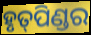
ହୃତ୍‍ପିଣ୍ଡର